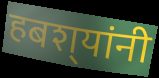
हबश्यांनी